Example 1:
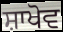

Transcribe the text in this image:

ਸ਼ਾਖੋਵ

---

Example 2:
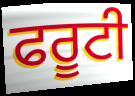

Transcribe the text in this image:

ਫਰੂਟੀ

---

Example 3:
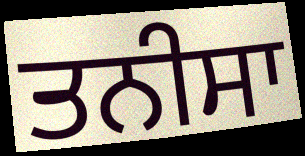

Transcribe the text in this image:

ਤਨੀਸਾ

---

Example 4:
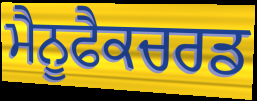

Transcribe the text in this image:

ਮੈਨੂਫੈਕਚਰਡ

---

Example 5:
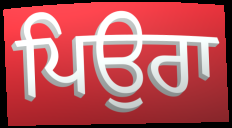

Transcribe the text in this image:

ਪਿਉਰਾ